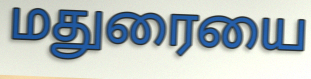
மதுரையை